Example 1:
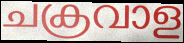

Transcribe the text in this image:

ചക്രവാള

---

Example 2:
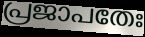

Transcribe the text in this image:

പ്രജാപതേഃ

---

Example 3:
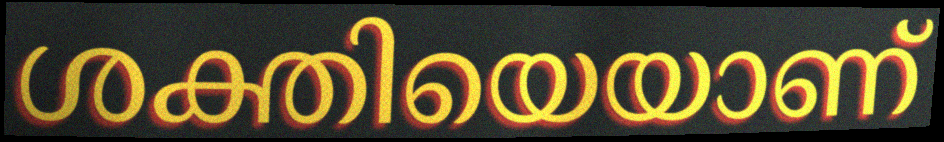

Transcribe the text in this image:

ശക്തിയെയാണ്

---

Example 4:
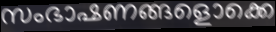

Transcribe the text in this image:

സംഭാഷണങ്ങളൊക്കെ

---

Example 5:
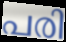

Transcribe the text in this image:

പരി